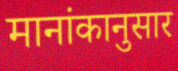
मानांकानुसार